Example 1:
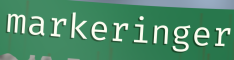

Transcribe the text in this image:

markeringer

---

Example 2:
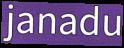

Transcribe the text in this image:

janadu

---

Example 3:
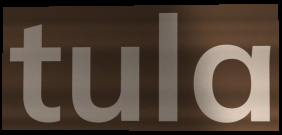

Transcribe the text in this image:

tula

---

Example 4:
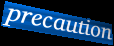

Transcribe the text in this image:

precaution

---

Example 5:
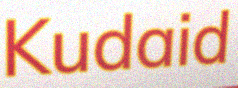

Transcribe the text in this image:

Kudaid